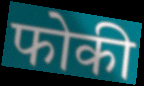
फोकी